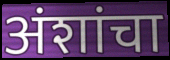
अंशांचा